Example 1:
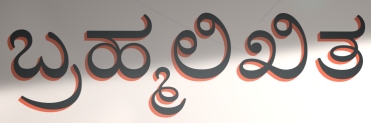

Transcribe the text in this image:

ಬ್ರಹ್ಮಲಿಖಿತ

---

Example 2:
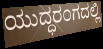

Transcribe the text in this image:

ಯುದ್ಧರಂಗದಲ್ಲಿ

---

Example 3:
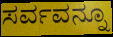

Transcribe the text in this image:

ಸರ್ವವನ್ನೂ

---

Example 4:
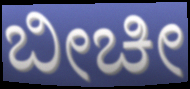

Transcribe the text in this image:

ಬೀಚೀ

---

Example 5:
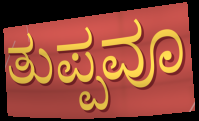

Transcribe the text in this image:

ತುಪ್ಪವೂ